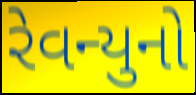
રેવન્યુનો